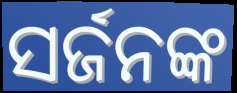
ସର୍ଜନଙ୍କ